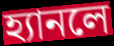
হ্যানলে